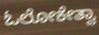
ಓಲೋಕೇತ್ವಾ